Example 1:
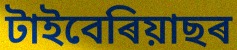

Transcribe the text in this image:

টাইবেৰিয়াছৰ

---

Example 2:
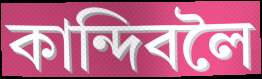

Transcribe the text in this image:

কান্দিবলৈ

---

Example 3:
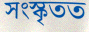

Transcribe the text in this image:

সংস্কৃতত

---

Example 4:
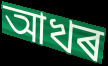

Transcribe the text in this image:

আখৰ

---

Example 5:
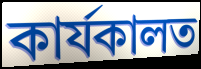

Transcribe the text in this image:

কাৰ্যকালত